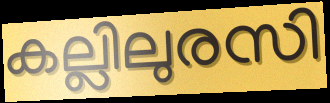
കല്ലിലുരസി